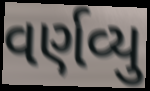
વર્ણવ્યુ